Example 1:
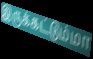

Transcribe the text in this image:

இருக்கட்டும்மா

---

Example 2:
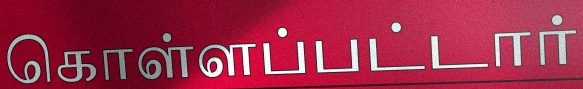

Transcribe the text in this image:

கொள்ளப்பட்டார்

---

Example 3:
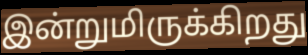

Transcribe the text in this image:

இன்றுமிருக்கிறது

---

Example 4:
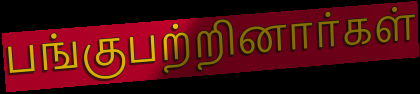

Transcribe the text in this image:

பங்குபற்றினார்கள்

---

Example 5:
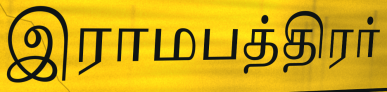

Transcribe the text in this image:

இராமபத்திரர்